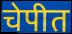
चेपीत